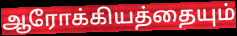
ஆரோக்கியத்தையும்